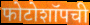
फोटोशॉपची